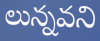
లున్నవని